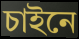
চাইনে